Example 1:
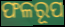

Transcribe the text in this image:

ଫଳରୂପ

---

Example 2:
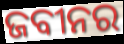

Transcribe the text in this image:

ଜବୀନର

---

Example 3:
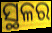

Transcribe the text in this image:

ସ୍ଥଳର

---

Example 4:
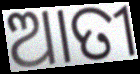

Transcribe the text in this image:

ଆତୀ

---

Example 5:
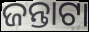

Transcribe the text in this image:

ଜନ୍ତାଟା